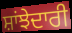
ਸ਼ਾਂਝੇਦਾਰੀ